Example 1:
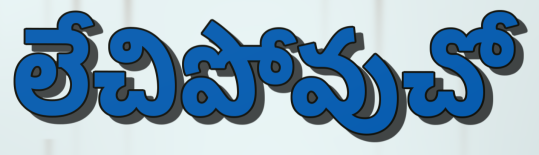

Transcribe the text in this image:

లేచిపోవుచో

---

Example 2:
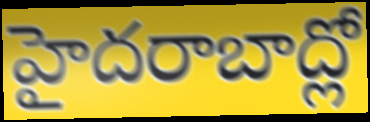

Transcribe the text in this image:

హైదరాబాద్లో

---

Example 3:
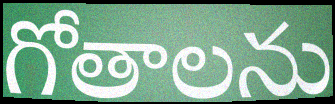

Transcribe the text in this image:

గోతాలను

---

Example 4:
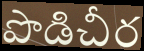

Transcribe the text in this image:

పొడిచీర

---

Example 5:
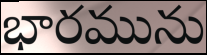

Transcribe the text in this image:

భారమును